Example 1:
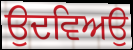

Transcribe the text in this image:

ਉਦਵਿਅਉ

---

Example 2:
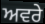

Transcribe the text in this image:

ਅਵਰੇ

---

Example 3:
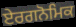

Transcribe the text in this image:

ਏਰਗਨੋਮਿਕ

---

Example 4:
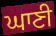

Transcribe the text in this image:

ਘਾਣੀ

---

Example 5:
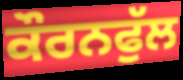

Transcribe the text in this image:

ਕੌਰਨਫੁੱਲ